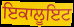
ਇਕਾਲੂਇਟ